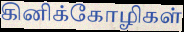
கினிக்கோழிகள்